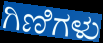
ಗಿಣಿಗಳು